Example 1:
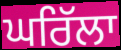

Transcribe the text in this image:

ਘਰਿੱਲਾ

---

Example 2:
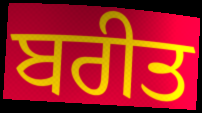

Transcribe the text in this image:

ਬਰੀਤ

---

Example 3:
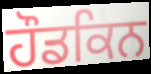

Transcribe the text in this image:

ਹੌਡਕਿਨ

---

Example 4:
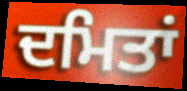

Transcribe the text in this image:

ਦਮਿਤਾਂ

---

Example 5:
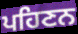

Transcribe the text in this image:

ਪਹਿਣਨ